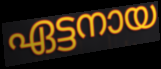
ഏട്ടനായ